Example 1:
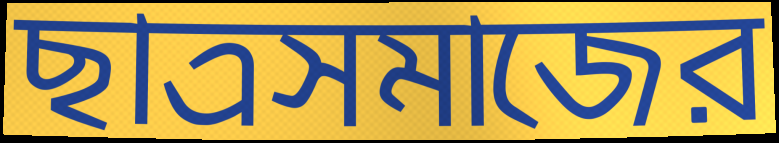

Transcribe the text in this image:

ছাত্রসমাজের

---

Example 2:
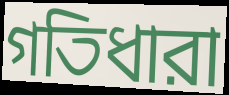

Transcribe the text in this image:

গতিধারা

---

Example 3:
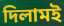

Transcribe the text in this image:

দিলামই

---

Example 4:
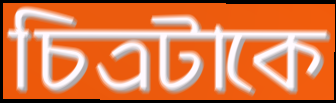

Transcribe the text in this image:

চিত্রটাকে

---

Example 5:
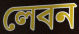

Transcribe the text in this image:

লেবন